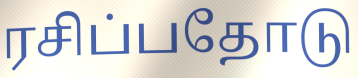
ரசிப்பதோடு